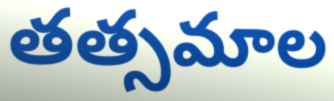
తత్సమాల